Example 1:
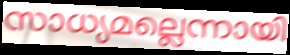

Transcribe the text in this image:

സാധ്യമല്ലെന്നായി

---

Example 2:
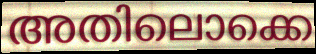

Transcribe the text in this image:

അതിലൊക്കെ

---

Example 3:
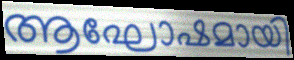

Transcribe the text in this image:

ആഘോഷമായി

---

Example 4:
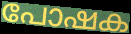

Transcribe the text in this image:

പോഷക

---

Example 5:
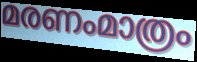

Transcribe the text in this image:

മരണംമാത്രം